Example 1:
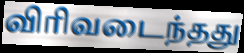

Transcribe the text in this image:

விரிவடைந்தது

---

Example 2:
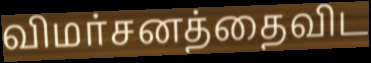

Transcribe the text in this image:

விமர்சனத்தைவிட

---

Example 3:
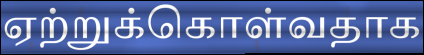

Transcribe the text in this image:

ஏற்றுக்கொள்வதாக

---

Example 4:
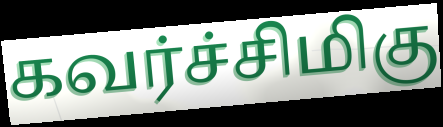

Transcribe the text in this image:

கவர்ச்சிமிகு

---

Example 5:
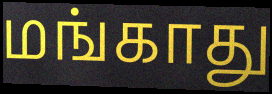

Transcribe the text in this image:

மங்காது